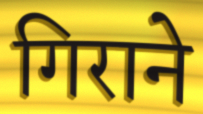
गिराने